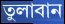
তুলাবান